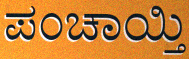
ಪಂಚಾಯ್ತಿ